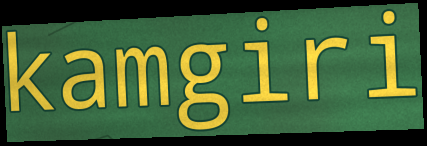
kamgiri